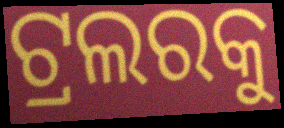
ଟ୍ରଲରକୁ